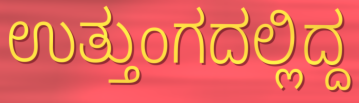
ಉತ್ತುಂಗದಲ್ಲಿದ್ದ